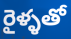
రైళ్ళతో